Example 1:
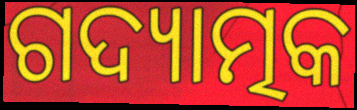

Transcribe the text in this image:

ଗଦ୍ୟାତ୍ମକ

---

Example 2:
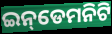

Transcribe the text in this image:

ଇନ୍‌ଡେମନିଟି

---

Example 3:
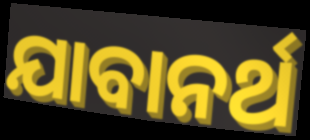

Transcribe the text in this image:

ଯାବାନର୍ଥ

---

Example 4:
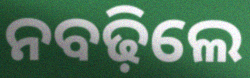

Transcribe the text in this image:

ନବଢ଼ିଲେ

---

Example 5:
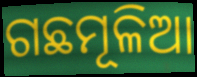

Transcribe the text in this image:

ଗଛମୂଳିଆ